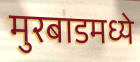
मुरबाडमध्ये